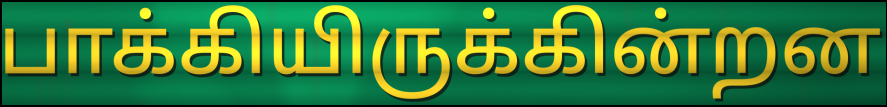
பாக்கியிருக்கின்றன